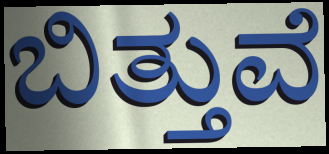
ಬಿತ್ತುವೆ